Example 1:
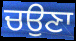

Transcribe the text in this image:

ਚਉਣਾ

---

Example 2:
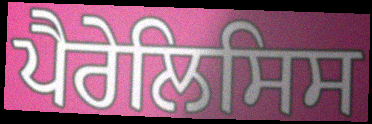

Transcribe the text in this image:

ਪੈਰੇਲਿਸਿਸ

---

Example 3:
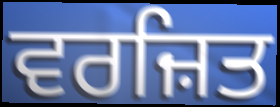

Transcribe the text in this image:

ਵਰਜ਼ਿਤ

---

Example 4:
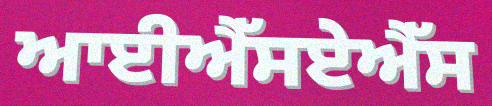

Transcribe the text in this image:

ਆਈਐੱਸਏਐੱਸ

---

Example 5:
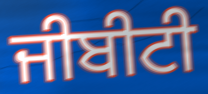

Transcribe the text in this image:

ਜੀਬੀਟੀ